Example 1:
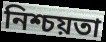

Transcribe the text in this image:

নিশ্চয়তা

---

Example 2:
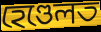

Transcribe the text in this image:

হেণ্ডেলত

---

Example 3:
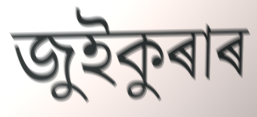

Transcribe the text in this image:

জুইকুৰাৰ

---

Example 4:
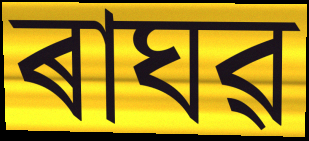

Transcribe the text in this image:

ৰাঘৱ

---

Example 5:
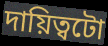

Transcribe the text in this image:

দায়িত্বটো